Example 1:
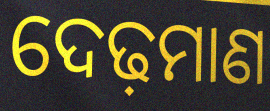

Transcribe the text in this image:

ଦେଢ଼ମାଣ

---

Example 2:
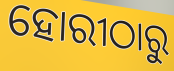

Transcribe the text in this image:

ହୋରୀଠାରୁ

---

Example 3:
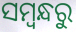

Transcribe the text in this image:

ସମ୍ୱନ୍ଧରୁ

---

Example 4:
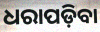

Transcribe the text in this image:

ଧରାପଡ଼ିବା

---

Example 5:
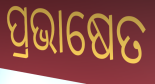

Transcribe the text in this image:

ପ୍ରଭାଷେତ